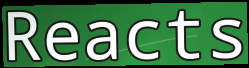
Reacts